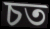
চত